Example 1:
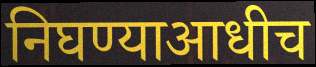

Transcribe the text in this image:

निघण्याआधीच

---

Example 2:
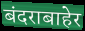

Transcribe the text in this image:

बंदराबाहेर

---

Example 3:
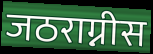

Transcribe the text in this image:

जठराग्नीस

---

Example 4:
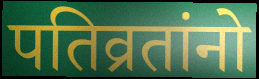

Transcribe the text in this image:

पतिव्रतांनो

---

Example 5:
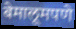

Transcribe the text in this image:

बेमालूमपणे